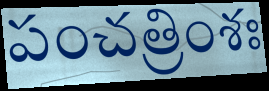
పంచత్రింశః